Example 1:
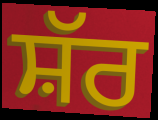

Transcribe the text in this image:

ਸ਼ੱਰ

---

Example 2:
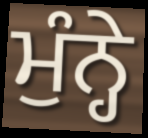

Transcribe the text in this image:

ਮੁੰਨ੍ਹੇ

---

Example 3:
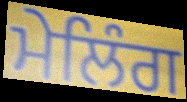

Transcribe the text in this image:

ਮੇਲਿੰਗ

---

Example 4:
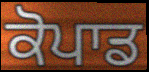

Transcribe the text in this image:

ਕੋਪਾਡ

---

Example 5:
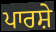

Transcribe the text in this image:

ਪਾਰਸ਼ੇ